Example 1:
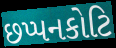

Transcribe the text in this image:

છપ્પનકોટિ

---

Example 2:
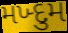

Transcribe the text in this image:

મખ્દુમ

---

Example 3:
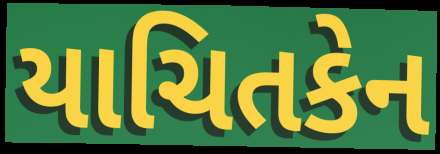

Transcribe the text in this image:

યાચિતકેન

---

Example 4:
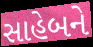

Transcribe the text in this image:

સાહેબને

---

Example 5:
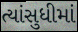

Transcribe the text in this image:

ત્યાંસુધીમાં